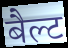
बैल्ट